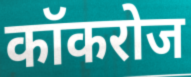
कॉकरोज